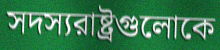
সদস্যরাষ্ট্রগুলোকে